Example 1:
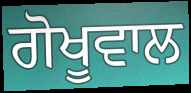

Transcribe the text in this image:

ਗੋਖੂਵਾਲ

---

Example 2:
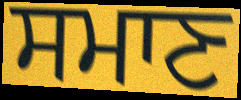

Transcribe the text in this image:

ਸਮਾਣ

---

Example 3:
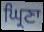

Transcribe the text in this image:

ਘ੍ਰਿਣਾ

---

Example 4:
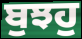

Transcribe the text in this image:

ਬੁਝਹੁ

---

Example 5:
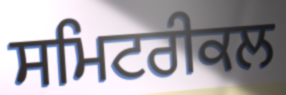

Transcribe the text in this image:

ਸਮਿਟਰੀਕਲ